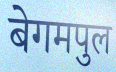
बेगमपुल